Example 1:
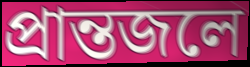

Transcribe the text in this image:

প্রান্তজলে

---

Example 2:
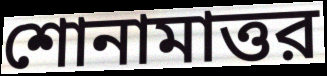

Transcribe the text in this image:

শোনামাত্তর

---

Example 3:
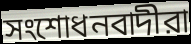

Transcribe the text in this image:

সংশোধনবাদীরা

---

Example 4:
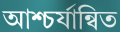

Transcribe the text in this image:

আশ্চর্যান্বিত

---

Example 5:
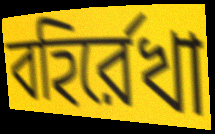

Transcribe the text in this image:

বহির্রেখা